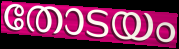
തോടയം